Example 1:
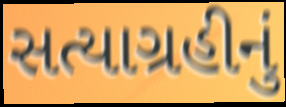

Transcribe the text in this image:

સત્યાગ્રહીનું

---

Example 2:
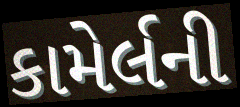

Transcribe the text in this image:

કામેર્લની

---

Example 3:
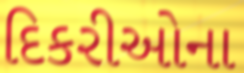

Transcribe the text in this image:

દિકરીઓના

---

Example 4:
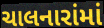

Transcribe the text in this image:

ચાલનારાંમાં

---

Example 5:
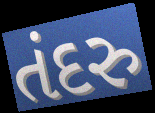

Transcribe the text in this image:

તંદરુ